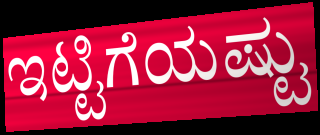
ಇಟ್ಟಿಗೆಯಷ್ಟು